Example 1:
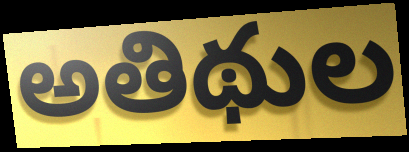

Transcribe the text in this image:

అతిథుల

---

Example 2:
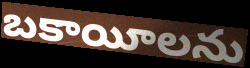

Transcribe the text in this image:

బకాయీలను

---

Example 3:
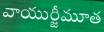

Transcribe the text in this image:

వాయుర్జీమూత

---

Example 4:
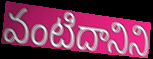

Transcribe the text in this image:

వంటిదానిని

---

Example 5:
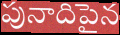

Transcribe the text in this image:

పునాదిపైన